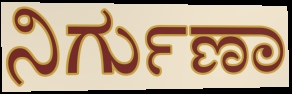
ನಿರ್ಗುಣಾ